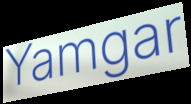
Yamgar